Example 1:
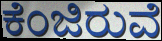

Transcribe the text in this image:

ಕೆಂಜಿರುವೆ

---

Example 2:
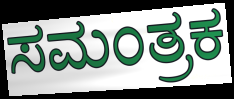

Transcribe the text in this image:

ಸಮಂತ್ರಕ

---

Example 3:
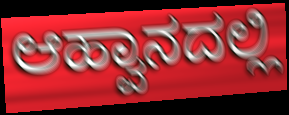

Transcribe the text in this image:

ಆಹ್ವಾನದಲ್ಲಿ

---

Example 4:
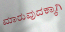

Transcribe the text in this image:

ಮಾರುವುದಕ್ಕಾಗಿ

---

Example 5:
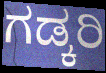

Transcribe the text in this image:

ಗಡ್ಕರಿ